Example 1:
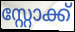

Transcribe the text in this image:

സ്റ്റോക്ക്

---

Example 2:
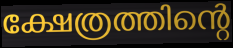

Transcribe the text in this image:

ക്ഷേത്രത്തിന്റെ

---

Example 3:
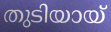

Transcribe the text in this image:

തുടിയായ്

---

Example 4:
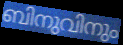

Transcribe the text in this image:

ബിനുവിനും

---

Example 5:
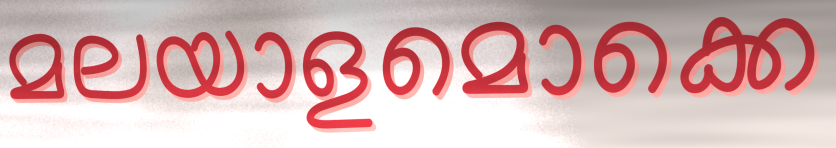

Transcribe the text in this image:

മലയാളമൊക്കെ